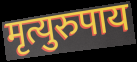
मृत्युरुपाय